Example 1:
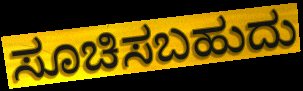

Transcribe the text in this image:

ಸೂಚಿಸಬಹುದು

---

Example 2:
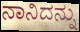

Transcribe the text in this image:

ನಾನಿದನ್ನು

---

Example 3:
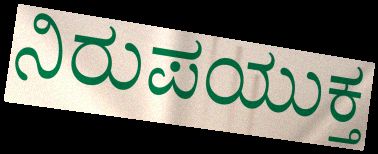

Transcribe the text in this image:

ನಿರುಪಯುಕ್ತ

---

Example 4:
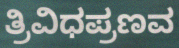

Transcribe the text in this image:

ತ್ರಿವಿಧಪ್ರಣವ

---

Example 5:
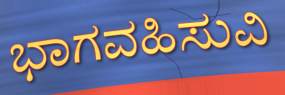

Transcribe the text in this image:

ಭಾಗವಹಿಸುವಿ